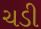
ચડી